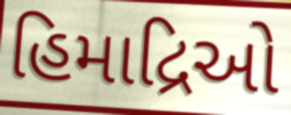
હિમાદ્રિઓ